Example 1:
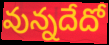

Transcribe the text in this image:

వున్నదేదో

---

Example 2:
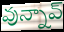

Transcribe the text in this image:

వున్నావ్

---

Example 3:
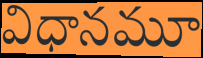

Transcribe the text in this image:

విధానమూ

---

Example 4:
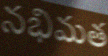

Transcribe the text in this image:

నభిమత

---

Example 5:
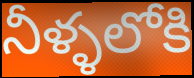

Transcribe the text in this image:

నీళ్ళలోకి